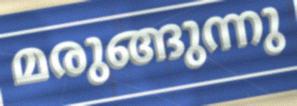
മരുങ്ങുന്നു